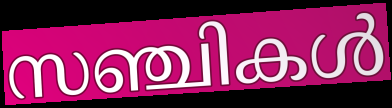
സഞ്ചികൾ